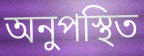
অনুপস্থিত